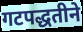
गटपद्धतीने